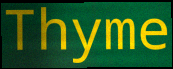
Thyme